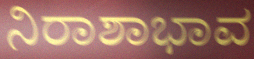
ನಿರಾಶಾಭಾವ